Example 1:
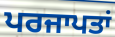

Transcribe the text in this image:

ਪਰਜਾਪਤਾਂ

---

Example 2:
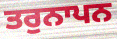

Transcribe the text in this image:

ਤਰੁਨਾਪਨ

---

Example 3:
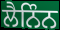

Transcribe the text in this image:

ਲੈਨਿੰਨ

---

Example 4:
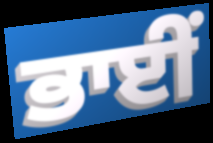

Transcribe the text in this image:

ਭਾਈੰ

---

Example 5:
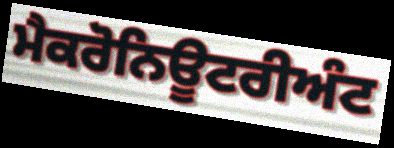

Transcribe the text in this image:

ਮੈਕਰੋਨਿਊਟਰੀਅੰਟ